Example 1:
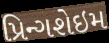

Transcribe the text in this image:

પ્રિન્ગશેઇમ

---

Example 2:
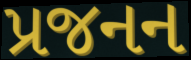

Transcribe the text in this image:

પ્રજનન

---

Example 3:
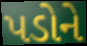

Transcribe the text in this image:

પડોને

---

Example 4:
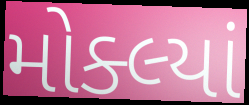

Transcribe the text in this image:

મોક્લ્યાં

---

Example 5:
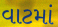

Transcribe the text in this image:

વાટમાં